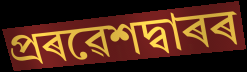
প্ৰৰৱেশদ্বাৰৰ